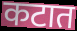
कटात